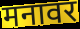
मनावर